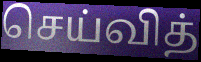
செய்வித்